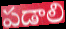
పడాలి